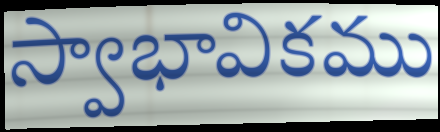
స్వాభావికము